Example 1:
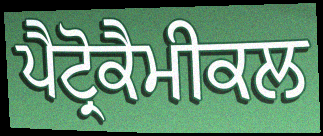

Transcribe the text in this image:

ਪੈਟ੍ਰੋਕੈਮੀਕਲ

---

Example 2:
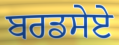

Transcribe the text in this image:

ਬਰਡਸੇਏ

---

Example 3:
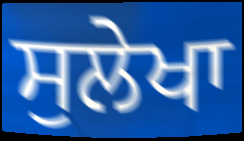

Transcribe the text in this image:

ਸੁਲੇਖਾ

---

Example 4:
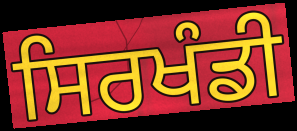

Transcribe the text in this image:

ਸਿਰਖੰਡੀ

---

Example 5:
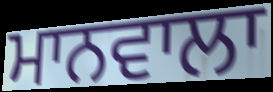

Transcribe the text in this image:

ਮਾਨਵਾਲਾ